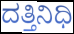
ದತ್ತಿನಿಧಿ